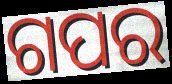
ଗପର